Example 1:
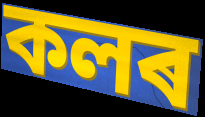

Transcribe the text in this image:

কলৰ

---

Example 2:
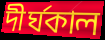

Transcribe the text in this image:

দীৰ্ঘকাল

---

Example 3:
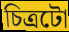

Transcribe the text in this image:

চিত্ৰটো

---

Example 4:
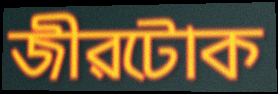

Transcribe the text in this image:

জীৱটোক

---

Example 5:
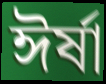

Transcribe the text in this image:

ঈৰ্ষা